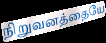
நிறுவனத்தையே